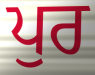
ਪੁਰ